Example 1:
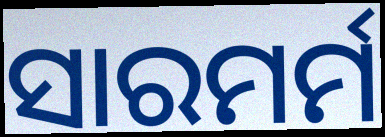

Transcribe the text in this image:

ସାରମର୍ମ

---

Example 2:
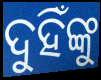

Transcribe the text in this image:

ଦୁହିଁଙ୍କୁ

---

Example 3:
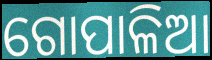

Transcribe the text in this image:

ଗୋପାଳିଆ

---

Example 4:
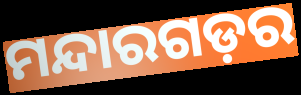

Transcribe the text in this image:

ମନ୍ଦାରଗଡ଼ର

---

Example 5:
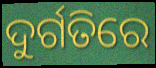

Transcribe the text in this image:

ଦୁର୍ଗତିରେ